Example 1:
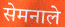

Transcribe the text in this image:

सेमनाले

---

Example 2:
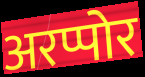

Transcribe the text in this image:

अरप्पोर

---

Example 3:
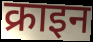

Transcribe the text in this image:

क्राइन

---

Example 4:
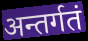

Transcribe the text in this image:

अन्तर्गतं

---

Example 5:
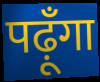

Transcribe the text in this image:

पढ़ूँगा